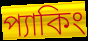
প্যাকিং